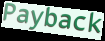
Payback